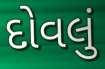
દોવલું